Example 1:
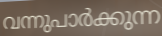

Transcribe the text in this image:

വന്നുപാർക്കുന്ന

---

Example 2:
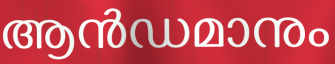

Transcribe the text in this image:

ആൻഡമാനും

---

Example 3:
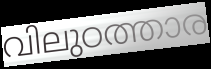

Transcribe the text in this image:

വിലുഠത്താര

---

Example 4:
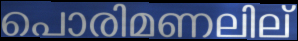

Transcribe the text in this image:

പൊരിമണലില്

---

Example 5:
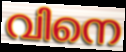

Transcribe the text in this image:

വിനെ